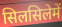
सिलसिलेमें